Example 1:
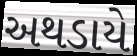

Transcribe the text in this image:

અથડાયે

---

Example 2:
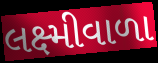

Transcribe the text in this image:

લક્ષ્મીવાળા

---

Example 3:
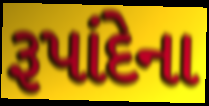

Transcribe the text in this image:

રૂપાંદેના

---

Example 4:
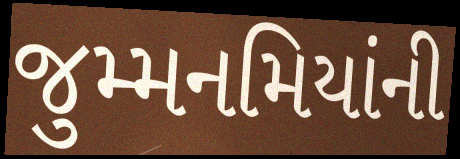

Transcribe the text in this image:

જુમ્મનમિયાંની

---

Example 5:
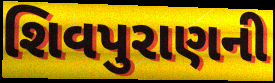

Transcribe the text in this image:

શિવપુરાણની